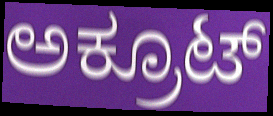
ಅಕ್ರೂಟ್